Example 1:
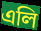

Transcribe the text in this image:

এলি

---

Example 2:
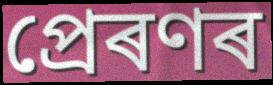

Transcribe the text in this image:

প্ৰেৰণৰ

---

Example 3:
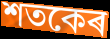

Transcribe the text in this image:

শতকেৰ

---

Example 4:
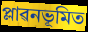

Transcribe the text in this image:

প্লাৱনভূমিত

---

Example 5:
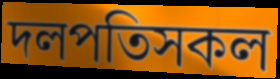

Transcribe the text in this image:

দলপতিসকল